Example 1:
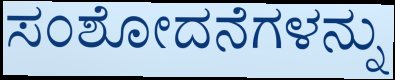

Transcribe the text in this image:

ಸಂಶೋದನೆಗಳನ್ನು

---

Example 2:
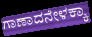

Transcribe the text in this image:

ಗಾಣಾದನೇಳಕ್ಕಾ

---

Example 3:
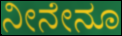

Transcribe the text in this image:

ನೀನೇನೂ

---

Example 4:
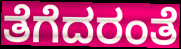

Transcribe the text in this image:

ತೆಗೆದರಂತೆ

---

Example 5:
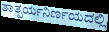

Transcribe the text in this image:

ತಾತ್ಪರ್ಯನಿರ್ಣಯದಲ್ಲಿ